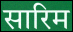
सारिम